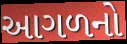
આગળનો